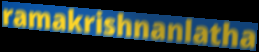
ramakrishnanlatha